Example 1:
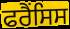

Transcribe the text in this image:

ਫਰੈਂਸਿਸ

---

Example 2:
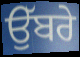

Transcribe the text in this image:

ਉੱਬਰੇ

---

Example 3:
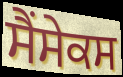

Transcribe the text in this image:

ਸੈਂਸੇਕਸ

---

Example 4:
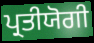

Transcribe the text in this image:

ਪ੍ਰਤੀਯੋਗੀ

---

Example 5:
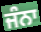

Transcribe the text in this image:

ਜੰਨਾ